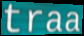
traa